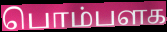
பொம்பளக